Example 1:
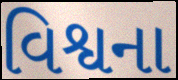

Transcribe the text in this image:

વિશ્વના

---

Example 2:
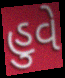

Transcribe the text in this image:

હુવે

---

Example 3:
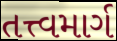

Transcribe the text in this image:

તત્ત્વમાર્ગ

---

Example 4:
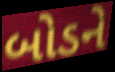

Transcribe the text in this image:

બોડને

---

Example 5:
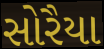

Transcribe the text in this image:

સોરૈયા